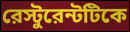
রেস্টুরেন্টটিকে